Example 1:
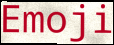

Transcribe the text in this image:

Emoji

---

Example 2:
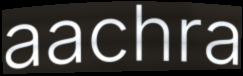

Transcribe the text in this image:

aachra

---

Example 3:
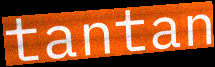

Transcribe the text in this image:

tantan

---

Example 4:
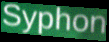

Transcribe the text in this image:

Syphon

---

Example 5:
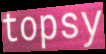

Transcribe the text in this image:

topsy